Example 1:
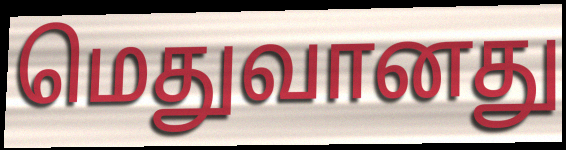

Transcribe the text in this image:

மெதுவானது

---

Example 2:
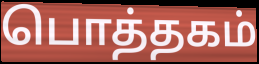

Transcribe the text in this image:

பொத்தகம்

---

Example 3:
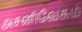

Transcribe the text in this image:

அசனிவேகம்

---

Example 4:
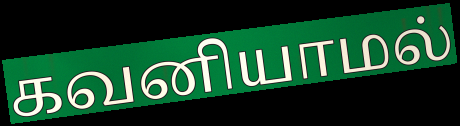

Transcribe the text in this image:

கவனியாமல்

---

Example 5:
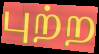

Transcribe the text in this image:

புற்ற